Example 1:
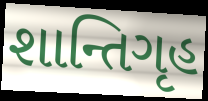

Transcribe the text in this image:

શાન્તિગૃહ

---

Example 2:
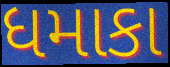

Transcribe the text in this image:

ધમાકા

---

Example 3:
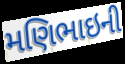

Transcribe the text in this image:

મણિભાઇની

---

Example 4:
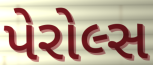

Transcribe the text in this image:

પેરોલ્સ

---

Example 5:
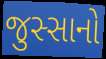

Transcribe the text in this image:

જુસ્સાનો